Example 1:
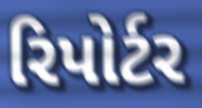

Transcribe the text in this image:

રિપોર્ટર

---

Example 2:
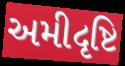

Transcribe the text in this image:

અમીદૃષ્ટિ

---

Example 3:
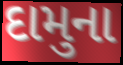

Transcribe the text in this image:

દામુના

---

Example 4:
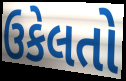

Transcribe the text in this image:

ઉકેલતો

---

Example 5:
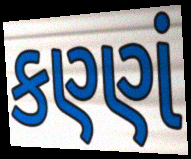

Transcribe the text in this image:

કણ્ણં